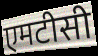
एमटीसी